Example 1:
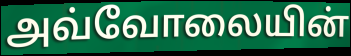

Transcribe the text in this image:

அவ்வோலையின்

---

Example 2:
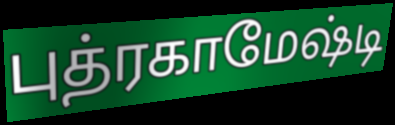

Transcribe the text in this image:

புத்ரகாமேஷ்டி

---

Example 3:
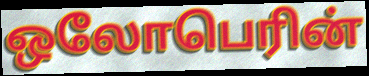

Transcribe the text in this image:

ஒலோபெரின்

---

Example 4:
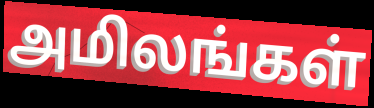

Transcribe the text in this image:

அமிலங்கள்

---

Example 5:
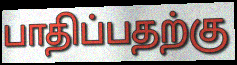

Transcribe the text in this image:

பாதிப்பதற்கு